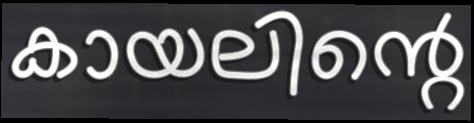
കായലിന്റെ